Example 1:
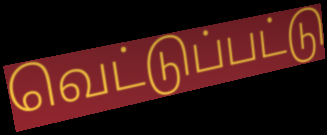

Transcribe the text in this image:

வெட்டுப்பட்டு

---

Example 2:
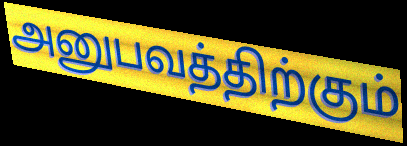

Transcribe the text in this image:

அனுபவத்திற்கும்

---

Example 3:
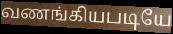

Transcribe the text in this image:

வணங்கியபடியே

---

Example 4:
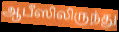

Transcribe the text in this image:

ஆபீஸிலிருந்து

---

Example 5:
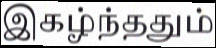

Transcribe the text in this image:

இகழ்ந்ததும்